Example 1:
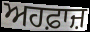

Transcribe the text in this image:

ਅਹਫ਼ਾਜ਼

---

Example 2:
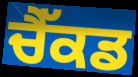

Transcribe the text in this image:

ਚੈੱਕਡ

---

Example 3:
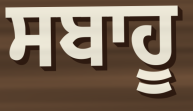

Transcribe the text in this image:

ਸਬਾਹੂ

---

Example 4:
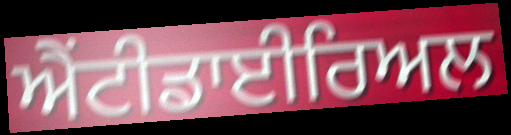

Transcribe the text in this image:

ਐਂਟੀਡਾਈਰਿਅਲ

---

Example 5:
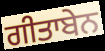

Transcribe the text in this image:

ਗੀਤਾਬੇਨ